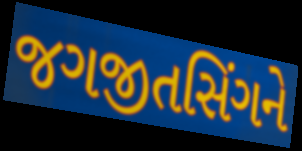
જગજીતસિંગને